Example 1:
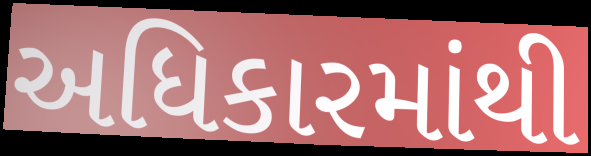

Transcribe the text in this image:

અધિકારમાંથી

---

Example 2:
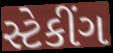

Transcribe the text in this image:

સ્ટેકીંગ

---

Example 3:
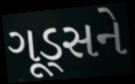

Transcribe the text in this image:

ગૂડ્સને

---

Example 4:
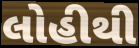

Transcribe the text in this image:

લોહીથી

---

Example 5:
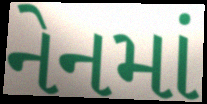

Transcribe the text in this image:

નેનમાં